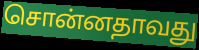
சொன்னதாவது